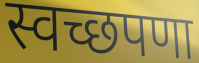
स्वच्छपणा